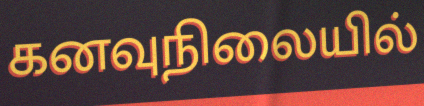
கனவுநிலையில்